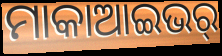
ମାକାଆଇଭର୍